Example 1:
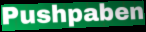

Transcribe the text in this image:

Pushpaben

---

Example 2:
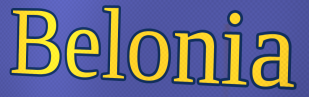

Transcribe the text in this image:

Belonia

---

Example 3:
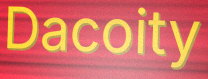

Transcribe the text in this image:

Dacoity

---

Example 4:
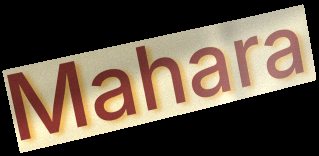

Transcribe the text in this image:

Mahara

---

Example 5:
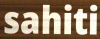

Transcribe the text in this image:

sahiti